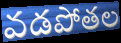
వడపోతల